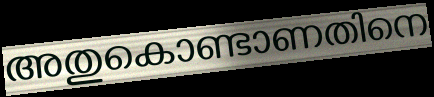
അതുകൊണ്ടാണതിനെ